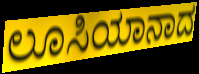
ಲೂಸಿಯಾನಾದ